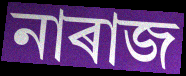
নাৰাজ